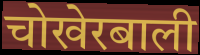
चोखेरबाली